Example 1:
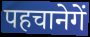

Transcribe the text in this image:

पहचानेगें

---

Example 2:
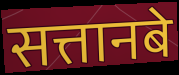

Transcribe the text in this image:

सत्तानबे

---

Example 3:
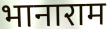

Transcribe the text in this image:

भानाराम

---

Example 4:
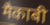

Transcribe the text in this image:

मैकाबी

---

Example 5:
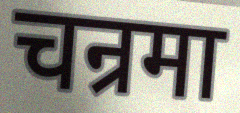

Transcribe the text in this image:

चन्रमा